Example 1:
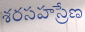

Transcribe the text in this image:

శరసహస్రేణ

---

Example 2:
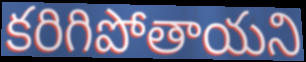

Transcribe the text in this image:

కరిగిపోతాయని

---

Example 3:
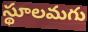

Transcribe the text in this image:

స్థూలమగు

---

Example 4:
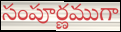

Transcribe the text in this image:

సంపూర్ణముగా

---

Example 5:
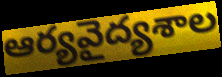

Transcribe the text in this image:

ఆర్యవైద్యశాల